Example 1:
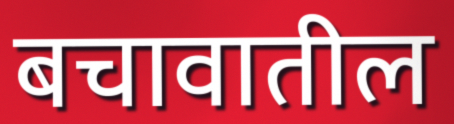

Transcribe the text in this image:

बचावातील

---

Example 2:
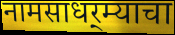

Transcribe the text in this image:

नामसाधर्म्याचा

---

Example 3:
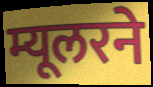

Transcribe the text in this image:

म्यूलरने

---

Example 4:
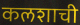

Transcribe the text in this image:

कलशाची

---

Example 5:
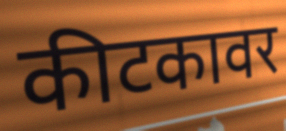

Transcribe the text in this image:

कीटकावर